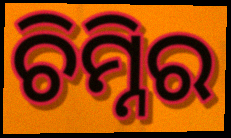
ଚିମ୍ନିର